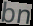
bn